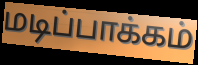
மடிப்பாக்கம்